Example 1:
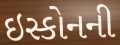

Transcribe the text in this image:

ઇસ્કોનની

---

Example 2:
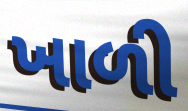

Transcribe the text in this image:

ખાળી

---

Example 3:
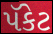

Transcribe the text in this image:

પૅકેટ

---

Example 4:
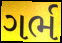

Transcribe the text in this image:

ગર્ભ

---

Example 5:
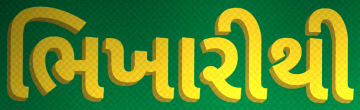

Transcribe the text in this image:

ભિખારીથી